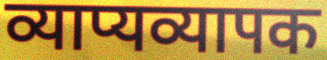
व्याप्यव्यापक